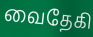
வைதேகி